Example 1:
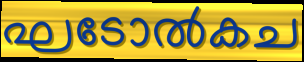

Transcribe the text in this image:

ഘടോൽകച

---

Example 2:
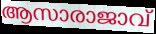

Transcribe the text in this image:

ആസാരാജാവ്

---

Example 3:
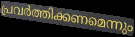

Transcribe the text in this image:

പ്രവർത്തിക്കണമെന്നും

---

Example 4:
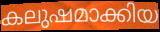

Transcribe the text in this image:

കലുഷമാക്കിയ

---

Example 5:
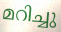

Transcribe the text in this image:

മറിച്ചു